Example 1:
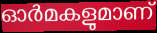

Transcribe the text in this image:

ഓർമകളുമാണ്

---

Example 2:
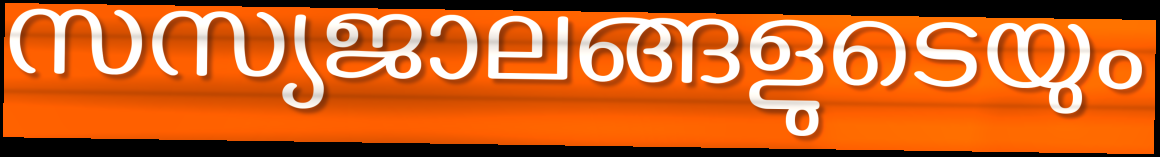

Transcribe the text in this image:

സസ്യജാലങ്ങളുടെയും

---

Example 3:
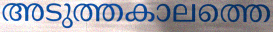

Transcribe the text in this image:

അടുത്തകാലത്തെ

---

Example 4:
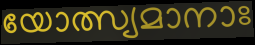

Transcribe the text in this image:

യോത്സ്യമാനാഃ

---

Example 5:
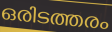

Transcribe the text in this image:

ഒരിടത്തരം